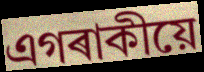
এগৰাকীয়ে